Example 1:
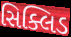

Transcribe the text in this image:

સિક્લિડ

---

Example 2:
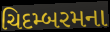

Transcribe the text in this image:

ચિદમ્બરમના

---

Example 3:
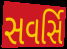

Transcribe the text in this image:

સવર્સિ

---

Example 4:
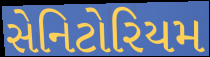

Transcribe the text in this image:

સેનિટોરિયમ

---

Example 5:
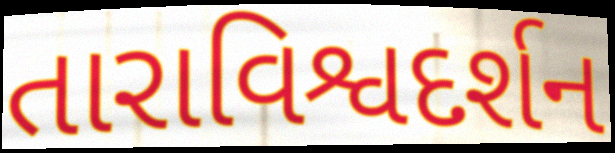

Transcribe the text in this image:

તારાવિશ્વદર્શન